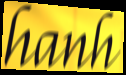
hanh